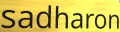
sadharon